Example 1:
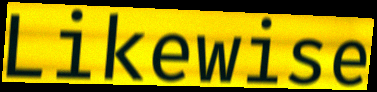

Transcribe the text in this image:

Likewise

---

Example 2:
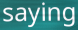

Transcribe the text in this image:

saying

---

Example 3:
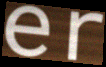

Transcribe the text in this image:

er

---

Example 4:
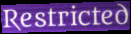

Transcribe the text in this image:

Restricted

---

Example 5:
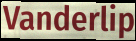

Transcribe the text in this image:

Vanderlip